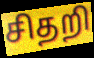
சிதறி